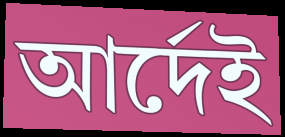
আর্দেই